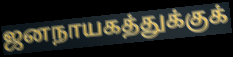
ஜனநாயகத்துக்குக்